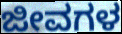
ಜೀವಗಳ